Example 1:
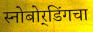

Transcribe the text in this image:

स्नोबोर्डिंगचा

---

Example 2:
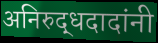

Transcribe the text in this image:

अनिरुद्धदादांनी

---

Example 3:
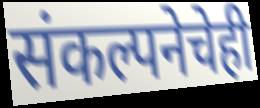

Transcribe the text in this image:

संकल्पनेचेही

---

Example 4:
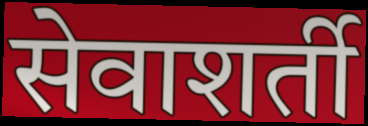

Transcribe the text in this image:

सेवाशर्ती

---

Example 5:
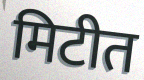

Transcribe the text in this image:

मिटीत